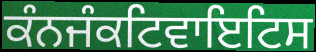
ਕੰਨਜੰਕਟਿਵਾਇਟਿਸ